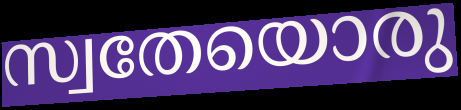
സ്വതേയൊരു